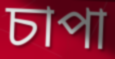
চাপা